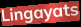
Lingayats